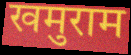
खमुराम